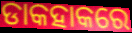
ଡାକହାକରେ